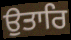
ਉਤਾਰਿ